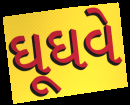
ઘૂઘવે